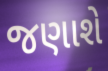
જણાશે